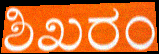
ಶಿಖರಂ